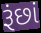
રૂંછાં